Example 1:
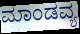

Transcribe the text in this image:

ಮಾಂಡವ್ಯ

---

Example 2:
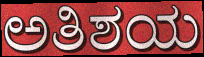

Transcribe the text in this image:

ಅತಿಶಯ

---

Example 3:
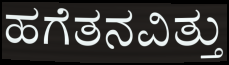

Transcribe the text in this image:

ಹಗೆತನವಿತ್ತು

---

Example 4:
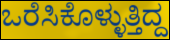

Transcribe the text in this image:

ಒರೆಸಿಕೊಳ್ಳುತ್ತಿದ್ದ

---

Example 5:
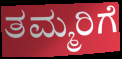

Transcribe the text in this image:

ತಮ್ಮರಿಗೆ